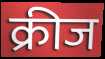
क्रीज